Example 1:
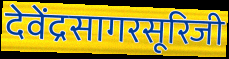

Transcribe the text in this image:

देवेंद्रसागरसूरिजी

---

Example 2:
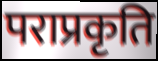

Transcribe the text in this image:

पराप्रकृति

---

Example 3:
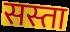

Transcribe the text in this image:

सस्‍ता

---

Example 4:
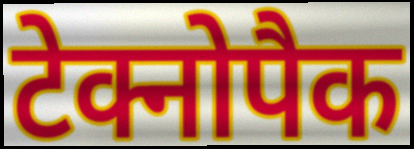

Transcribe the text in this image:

टेक्नोपैक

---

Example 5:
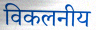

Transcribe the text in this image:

विकलनीय